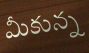
మీకున్న